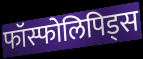
फॉस्फोलिपिड्स